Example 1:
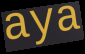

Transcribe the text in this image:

aya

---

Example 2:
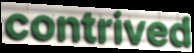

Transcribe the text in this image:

contrived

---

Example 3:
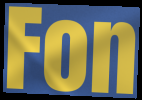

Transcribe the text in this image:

Fon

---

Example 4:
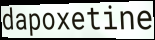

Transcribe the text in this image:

dapoxetine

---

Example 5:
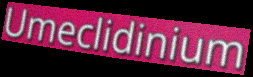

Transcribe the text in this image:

Umeclidinium